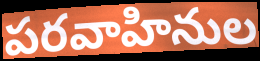
పరవాహినుల